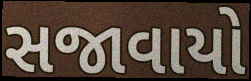
સજાવાયો